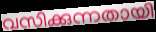
വസിക്കുന്നതായി